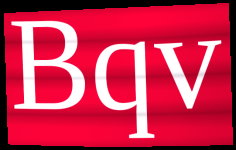
Bqv